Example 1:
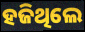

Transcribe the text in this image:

ହଜିଥିଲେ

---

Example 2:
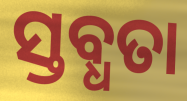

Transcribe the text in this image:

ସ୍ତବ୍ଧତା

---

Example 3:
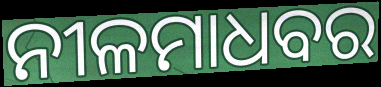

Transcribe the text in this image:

ନୀଳମାଧବର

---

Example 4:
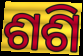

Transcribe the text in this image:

ଶଶି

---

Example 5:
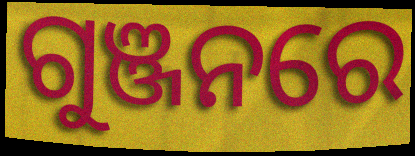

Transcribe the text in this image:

ଗୁଞ୍ଜନରେ